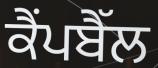
ਕੈਂਪਬੈੱਲ